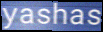
yashas